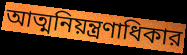
আত্মনিয়ন্ত্রণাধিকার